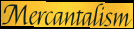
Mercantalism